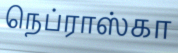
நெப்ராஸ்கா